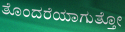
ತೊಂದರೆಯಾಗುತ್ತೋ